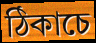
ঠিকাচে